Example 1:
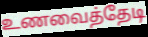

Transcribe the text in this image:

உணவைத்தேடி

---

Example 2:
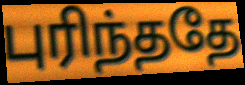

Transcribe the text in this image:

புரிந்ததே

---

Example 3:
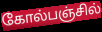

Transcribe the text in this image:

கோல்பஞ்சில்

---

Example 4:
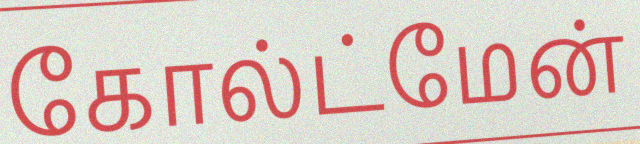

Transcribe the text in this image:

கோல்ட்மேன்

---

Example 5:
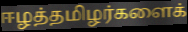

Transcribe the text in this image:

ஈழத்தமிழர்களைக்